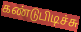
கண்டுபிடிச்சு